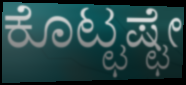
ಕೊಟ್ಟಷ್ಟೇ